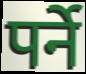
पर्ने